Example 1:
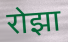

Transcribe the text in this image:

रोझा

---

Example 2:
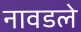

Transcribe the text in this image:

नावडले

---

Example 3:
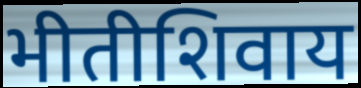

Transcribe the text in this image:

भीतीशिवाय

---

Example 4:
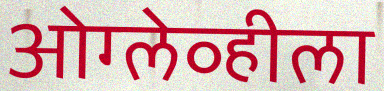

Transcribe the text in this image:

ओग्लेव्हीला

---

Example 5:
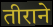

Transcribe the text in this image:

तीराने